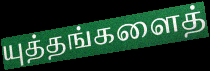
யுத்தங்களைத்